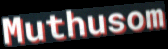
Muthusom